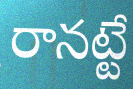
రానట్టే